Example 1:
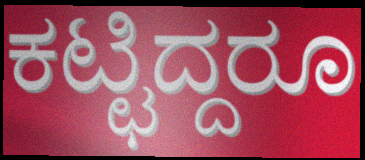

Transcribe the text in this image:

ಕಟ್ಟಿದ್ದರೂ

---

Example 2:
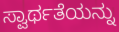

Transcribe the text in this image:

ಸ್ವಾರ್ಥತೆಯನ್ನು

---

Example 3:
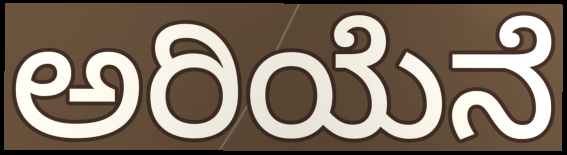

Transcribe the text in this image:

ಅರಿಯೆನೆ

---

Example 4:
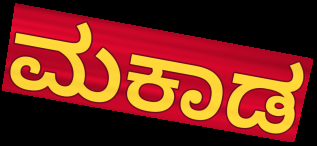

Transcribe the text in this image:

ಮಕಾಡ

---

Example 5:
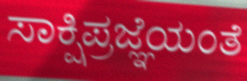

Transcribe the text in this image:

ಸಾಕ್ಷಿಪ್ರಜ್ಞೆಯಂತೆ